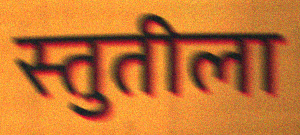
स्तुतीला